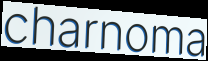
charnoma